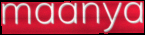
maanya